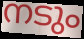
നടും